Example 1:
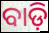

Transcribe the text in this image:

ବାଡ଼ି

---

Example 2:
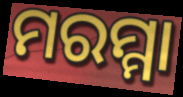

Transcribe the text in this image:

ମରମ୍ମା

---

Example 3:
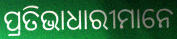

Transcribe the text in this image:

ପ୍ରତିଭାଧାରୀମାନେ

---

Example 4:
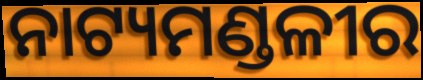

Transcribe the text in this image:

ନାଟ୍ୟମଣ୍ଡଳୀର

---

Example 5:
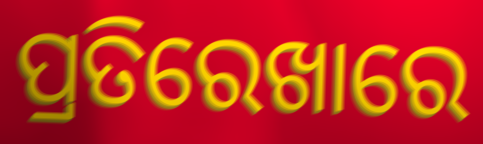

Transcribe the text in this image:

ପ୍ରତିରେଖାରେ